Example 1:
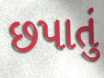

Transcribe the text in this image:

છપાતું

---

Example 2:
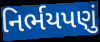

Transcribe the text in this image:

નિર્ભયપણું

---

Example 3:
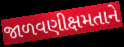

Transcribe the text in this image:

જાળવણીક્ષમતાને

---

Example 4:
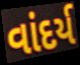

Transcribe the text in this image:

વાંદર્ય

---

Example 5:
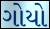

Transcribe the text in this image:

ગોયો